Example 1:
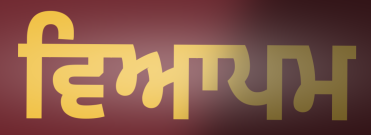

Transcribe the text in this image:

ਵਿਆਪਮ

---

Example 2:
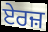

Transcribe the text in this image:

ਏਰਜ਼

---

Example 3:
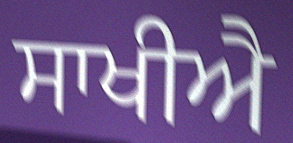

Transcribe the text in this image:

ਸਾਖੀਐ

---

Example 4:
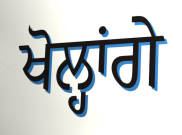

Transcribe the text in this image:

ਖੋਲ੍ਹਾਂਗੇ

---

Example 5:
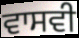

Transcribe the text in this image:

ਵਾਸਵੀ